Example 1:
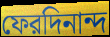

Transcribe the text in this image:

ফেরদিনান্দ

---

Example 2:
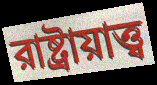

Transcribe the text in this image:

রাষ্ট্রায়াত্ত্ব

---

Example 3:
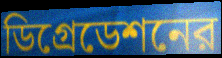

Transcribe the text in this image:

ডিগ্রেডেশনের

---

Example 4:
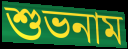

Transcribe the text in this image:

শুভনাম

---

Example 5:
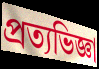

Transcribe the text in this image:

প্রত্যভিজ্ঞা